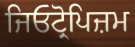
ਜਿਓਟ੍ਰੋਪਿਜ਼ਮ